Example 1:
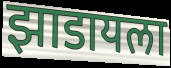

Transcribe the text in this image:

झाडायला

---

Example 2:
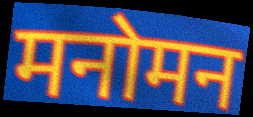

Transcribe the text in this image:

मनोमन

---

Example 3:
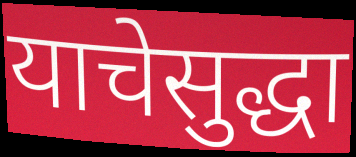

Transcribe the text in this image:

याचेसुद्धा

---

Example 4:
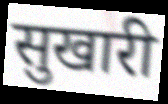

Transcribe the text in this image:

सुखारी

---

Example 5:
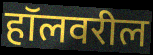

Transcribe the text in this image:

हॉलवरील